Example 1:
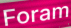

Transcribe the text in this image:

Foram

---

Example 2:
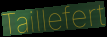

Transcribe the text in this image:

Taillefert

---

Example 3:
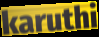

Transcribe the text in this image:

karuthi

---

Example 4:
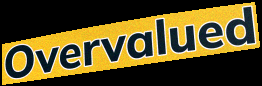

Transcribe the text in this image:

Overvalued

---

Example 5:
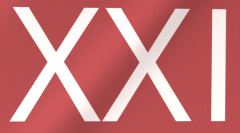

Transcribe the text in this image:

XXI